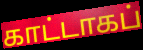
காட்டாகப்